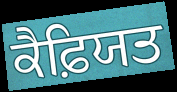
ਕੈਫ਼ਿਯਤ